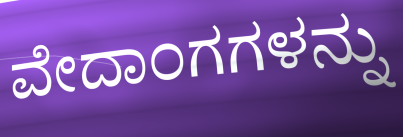
ವೇದಾಂಗಗಳನ್ನು